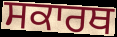
ਸਕਾਰਥ